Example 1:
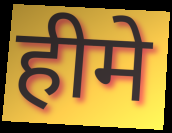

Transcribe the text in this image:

हीमे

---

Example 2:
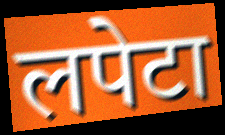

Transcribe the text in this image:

लपेटा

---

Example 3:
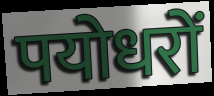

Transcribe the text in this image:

पयोधरों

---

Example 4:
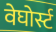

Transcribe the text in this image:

वेघोर्स्ट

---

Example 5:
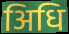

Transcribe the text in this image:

अिधि